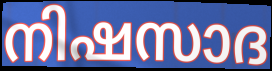
നിഷസാദ